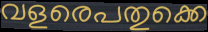
വളരെപതുക്കെ